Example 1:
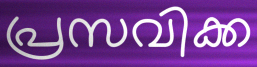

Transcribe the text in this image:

പ്രസവിക്ക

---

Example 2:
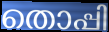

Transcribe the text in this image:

തൊപ്പി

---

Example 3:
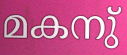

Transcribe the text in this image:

മകനു്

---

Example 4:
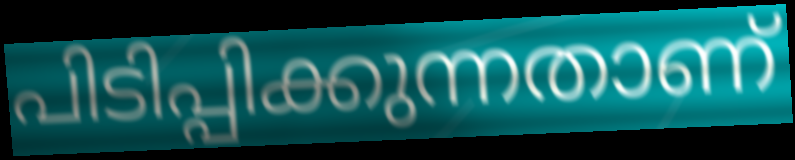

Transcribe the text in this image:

പിടിപ്പിക്കുന്നതാണ്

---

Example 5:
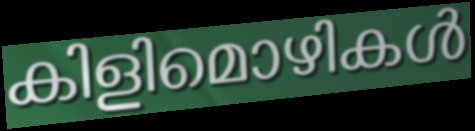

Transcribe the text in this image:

കിളിമൊഴികൾ